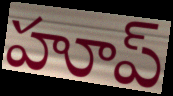
హూప్